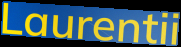
Laurentii